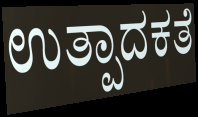
ಉತ್ಪಾದಕತೆ